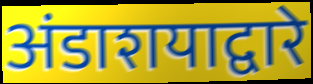
अंडाशयाद्वारे